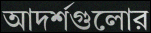
আদর্শগুলোর